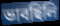
ভাবছিলি